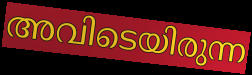
അവിടെയിരുന്ന